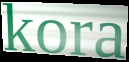
kora